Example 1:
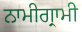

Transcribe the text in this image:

ਨਾਮੀਗ੍ਰਾਮੀ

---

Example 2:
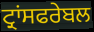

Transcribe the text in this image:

ਟ੍ਰਾਂਸਫਰੇਬਲ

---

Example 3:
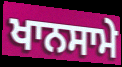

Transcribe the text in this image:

ਖਾਨਸਾਮੇ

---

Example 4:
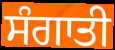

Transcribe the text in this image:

ਸੰਗਾਤੀ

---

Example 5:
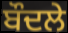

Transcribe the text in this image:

ਬੌਦਲੇ